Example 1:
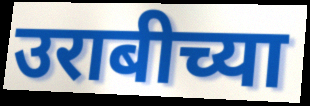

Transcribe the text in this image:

उराबीच्या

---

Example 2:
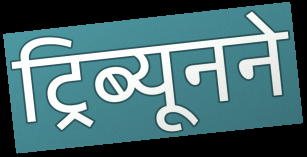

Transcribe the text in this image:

ट्रिब्यूनने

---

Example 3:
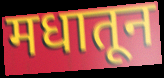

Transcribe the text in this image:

मधातून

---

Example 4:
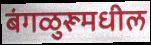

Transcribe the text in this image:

बंगळुरूमधील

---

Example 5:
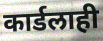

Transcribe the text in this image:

कार्डलाही